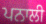
ਪਨਾਲੀ